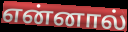
என்னால்